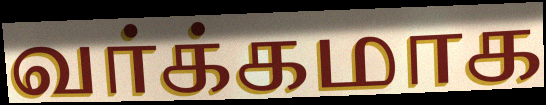
வர்க்கமாக